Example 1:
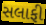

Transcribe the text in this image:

સલાફી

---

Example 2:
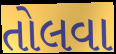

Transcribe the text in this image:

તોલવા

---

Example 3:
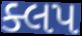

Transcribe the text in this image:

ક્લપ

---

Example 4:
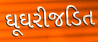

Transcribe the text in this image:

ઘૂઘરીજડિત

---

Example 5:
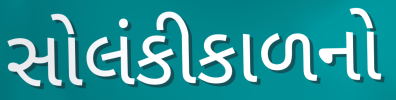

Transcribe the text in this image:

સોલંકીકાળનો